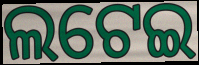
ଲଟେଇ